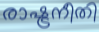
രാഷ്ട്രനീതി